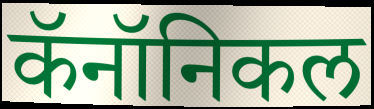
कॅनॉनिकल